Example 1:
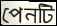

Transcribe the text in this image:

পেনটি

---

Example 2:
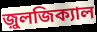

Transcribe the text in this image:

জ়ুলজিক্যাল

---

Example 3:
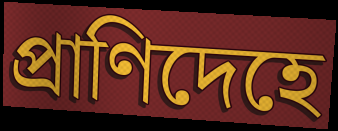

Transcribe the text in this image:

প্রাণিদেহে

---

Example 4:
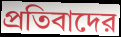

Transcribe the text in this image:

প্রতিবাদের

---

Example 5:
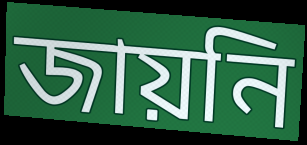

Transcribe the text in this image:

জায়নি